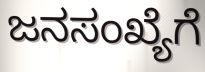
ಜನಸಂಖ್ಯೆಗೆ